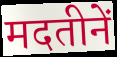
मदतीनें